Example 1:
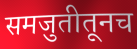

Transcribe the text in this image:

समजुतीतूनच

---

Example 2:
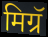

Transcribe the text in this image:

मिग्रॅ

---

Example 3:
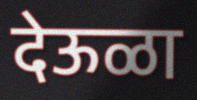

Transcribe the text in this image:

देऊळा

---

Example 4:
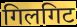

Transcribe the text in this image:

गिलगिट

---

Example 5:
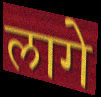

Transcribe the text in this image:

लागे